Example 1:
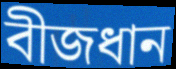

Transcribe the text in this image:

বীজধান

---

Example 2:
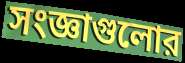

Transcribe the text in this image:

সংজ্ঞাগুলোর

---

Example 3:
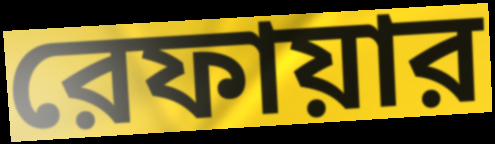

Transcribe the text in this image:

রেফায়ার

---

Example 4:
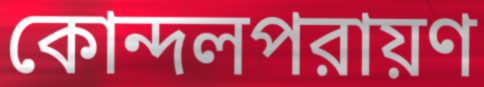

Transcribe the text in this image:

কোন্দলপরায়ণ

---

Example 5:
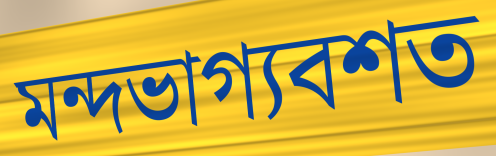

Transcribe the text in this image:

মন্দভাগ্যবশত